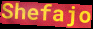
Shefajo